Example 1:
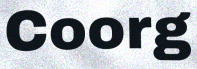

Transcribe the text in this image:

Coorg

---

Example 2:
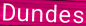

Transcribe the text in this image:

Dundes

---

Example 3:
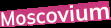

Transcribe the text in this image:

Moscovium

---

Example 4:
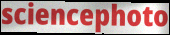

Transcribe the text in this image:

sciencephoto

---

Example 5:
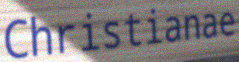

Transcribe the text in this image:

Christianae